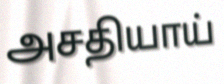
அசதியாய்